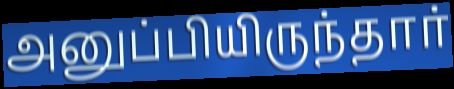
அனுப்பியிருந்தார்